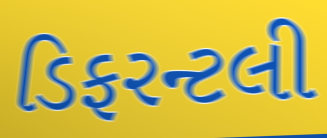
ડિફરન્ટલી